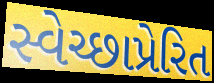
સ્વેચ્છાપ્રેરિત